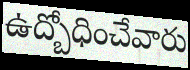
ఉద్బోధించేవారు